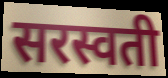
सरस्वती